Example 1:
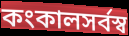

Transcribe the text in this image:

কংকালসর্বস্ব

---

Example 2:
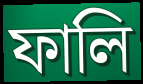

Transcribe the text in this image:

ফালি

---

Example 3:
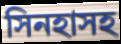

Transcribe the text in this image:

সিনহাসহ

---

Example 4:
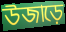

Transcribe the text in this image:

উজাড়ে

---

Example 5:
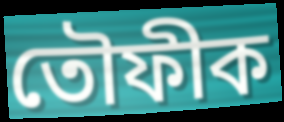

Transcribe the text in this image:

তৌফীক